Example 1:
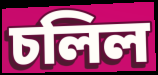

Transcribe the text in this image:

চলিল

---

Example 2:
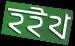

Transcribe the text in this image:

হইথ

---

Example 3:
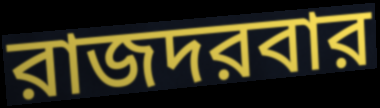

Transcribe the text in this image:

রাজদরবার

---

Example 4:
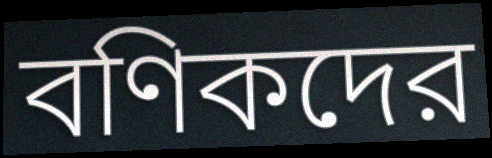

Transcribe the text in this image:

বণিকদের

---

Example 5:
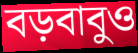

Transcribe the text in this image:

বড়বাবুও